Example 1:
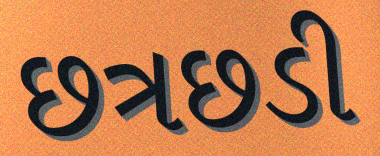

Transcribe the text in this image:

છત્રછડી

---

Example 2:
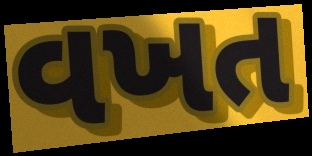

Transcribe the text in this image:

વખત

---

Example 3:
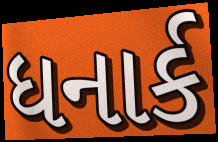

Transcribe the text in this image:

ધનાર્ક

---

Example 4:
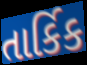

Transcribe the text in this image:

તાર્કિક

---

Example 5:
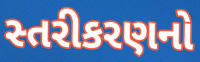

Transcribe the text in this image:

સ્તરીકરણનો